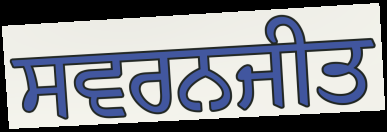
ਸਵਰਨਜੀਤ